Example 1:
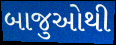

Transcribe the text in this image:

બાજુઓથી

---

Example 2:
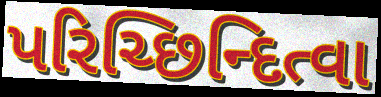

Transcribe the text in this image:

પરિચ્છિન્દિત્વા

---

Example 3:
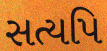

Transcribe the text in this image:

સત્યપિ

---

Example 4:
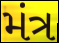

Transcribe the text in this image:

મંત્ર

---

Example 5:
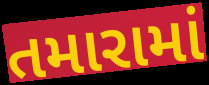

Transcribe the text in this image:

તમારામાં